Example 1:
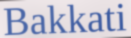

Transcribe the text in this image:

Bakkati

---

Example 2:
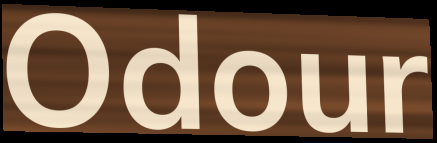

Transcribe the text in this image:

Odour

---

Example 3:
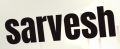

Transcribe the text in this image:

sarvesh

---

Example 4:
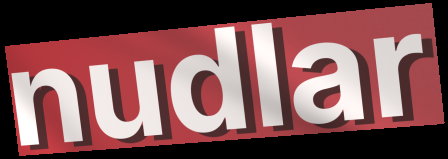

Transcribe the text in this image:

nudlar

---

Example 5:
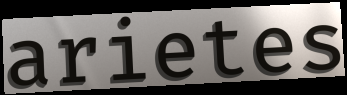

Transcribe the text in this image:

arietes